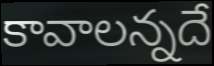
కావాలన్నదే